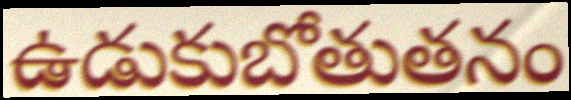
ఉడుకుబోతుతనం